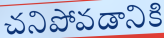
చనిపోవడానికి